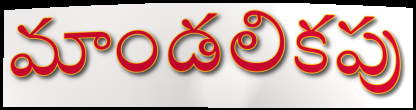
మాండలికపు